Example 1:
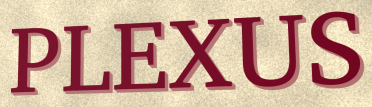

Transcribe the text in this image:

PLEXUS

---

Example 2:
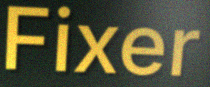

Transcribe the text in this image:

Fixer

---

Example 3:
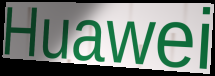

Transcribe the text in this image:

Huawei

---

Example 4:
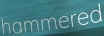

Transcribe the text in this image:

hammered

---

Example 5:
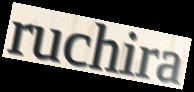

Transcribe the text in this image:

ruchira